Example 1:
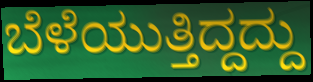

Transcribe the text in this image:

ಬೆಳೆಯುತ್ತಿದ್ದದ್ದು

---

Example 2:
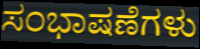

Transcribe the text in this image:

ಸಂಭಾಷಣೆಗಳು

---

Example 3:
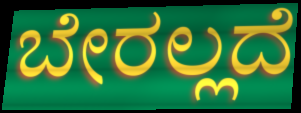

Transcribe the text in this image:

ಬೇರಲ್ಲದೆ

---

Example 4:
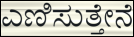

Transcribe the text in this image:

ಎಣಿಸುತ್ತೇನೆ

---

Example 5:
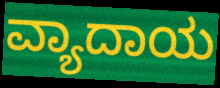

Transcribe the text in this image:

ವ್ಯಾದಾಯ